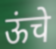
ऊंचे